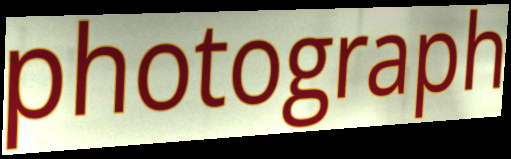
photograph